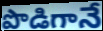
పొడిగానే